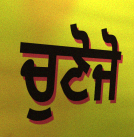
ਚੁਣੋਜੋ